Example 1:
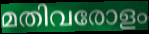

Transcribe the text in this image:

മതിവരോളം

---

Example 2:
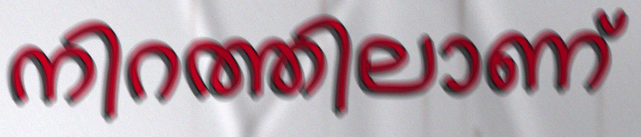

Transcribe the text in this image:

നിറത്തിലാണ്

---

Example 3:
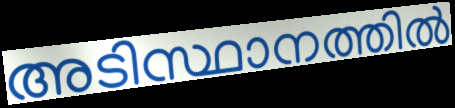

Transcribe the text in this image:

അടിസ്ഥാനത്തിൽ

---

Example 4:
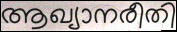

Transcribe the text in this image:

ആഖ്യാനരീതി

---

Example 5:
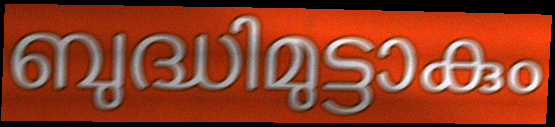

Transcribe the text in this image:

ബുദ്ധിമുട്ടാകും